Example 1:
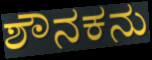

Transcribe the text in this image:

ಶೌನಕನು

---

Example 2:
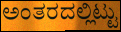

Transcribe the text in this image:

ಅಂತರದಲ್ಲಿಟ್ಟು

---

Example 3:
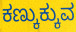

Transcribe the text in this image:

ಕಣ್ಕುಕ್ಕುವ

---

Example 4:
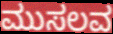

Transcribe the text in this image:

ಮುಸಲವ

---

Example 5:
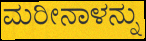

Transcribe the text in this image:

ಮರೀನಾಳನ್ನು